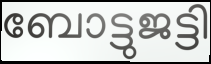
ബോട്ടുജട്ടി